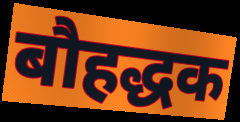
बौहद्धक